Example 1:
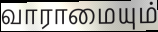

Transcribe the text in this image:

வாராமையும்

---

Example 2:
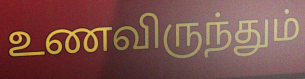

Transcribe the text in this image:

உணவிருந்தும்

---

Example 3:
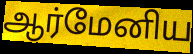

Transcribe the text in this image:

ஆர்மேனிய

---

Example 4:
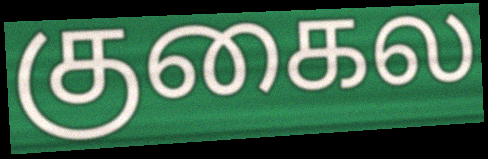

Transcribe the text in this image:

குகைல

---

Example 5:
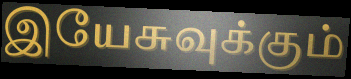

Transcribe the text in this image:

இயேசுவுக்கும்